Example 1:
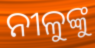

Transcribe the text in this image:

ନୀଳୁଙ୍କୁ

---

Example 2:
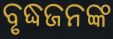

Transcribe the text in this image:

ବୃଦ୍ଧଜନଙ୍କ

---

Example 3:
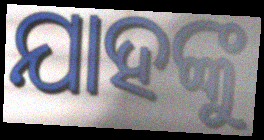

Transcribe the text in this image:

ଯାହଙ୍କୁ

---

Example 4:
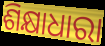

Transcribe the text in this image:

ଶିକ୍ଷାଧାରା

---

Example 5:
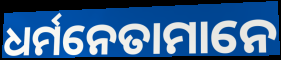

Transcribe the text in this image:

ଧର୍ମନେତାମାନେ